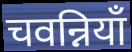
चवन्नियाँ